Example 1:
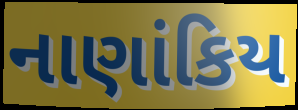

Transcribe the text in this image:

નાણાંકિય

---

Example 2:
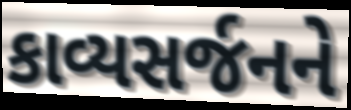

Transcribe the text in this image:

કાવ્યસર્જનને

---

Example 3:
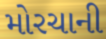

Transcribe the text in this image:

મોરચાની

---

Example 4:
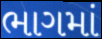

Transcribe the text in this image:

ભાગમાં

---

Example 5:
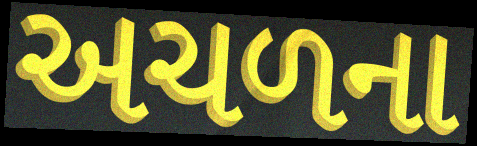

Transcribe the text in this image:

અચળના